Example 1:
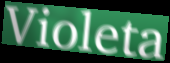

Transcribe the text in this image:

Violeta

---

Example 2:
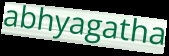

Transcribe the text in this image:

abhyagatha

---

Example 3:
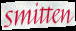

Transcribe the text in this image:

smitten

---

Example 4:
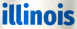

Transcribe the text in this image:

illinois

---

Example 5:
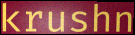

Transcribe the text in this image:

krushn